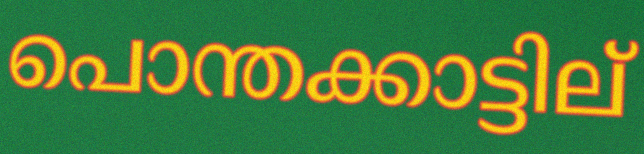
പൊന്തക്കാട്ടില്